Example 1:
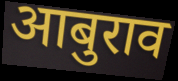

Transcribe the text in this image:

आबुराव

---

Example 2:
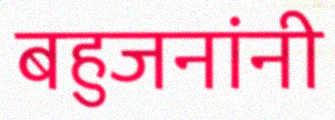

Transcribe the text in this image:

बहुजनांनी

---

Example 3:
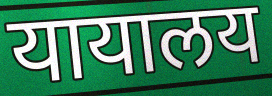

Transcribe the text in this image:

यायालय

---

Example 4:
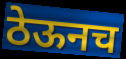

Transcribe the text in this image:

ठेऊनच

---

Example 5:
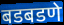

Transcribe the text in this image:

बडबडणे